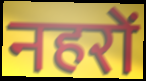
नहरों